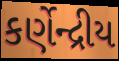
કર્ણેન્દ્રીય